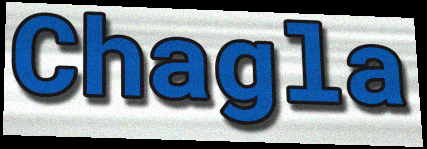
Chagla